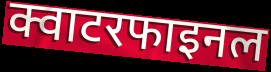
क्वाटरफाइनल